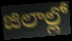
జిలాల్లో